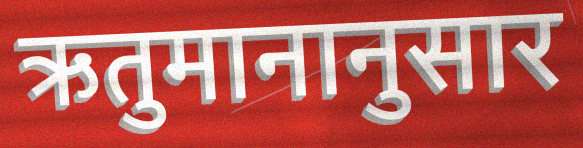
ऋतुमानानुसार